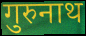
गुरुनाथ